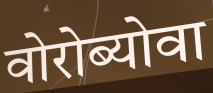
वोरोब्योवा